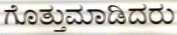
ಗೊತ್ತುಮಾಡಿದರು